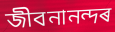
জীবনানন্দৰ